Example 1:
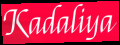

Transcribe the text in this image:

Kadaliya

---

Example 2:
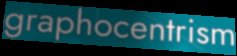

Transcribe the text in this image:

graphocentrism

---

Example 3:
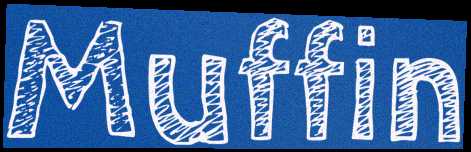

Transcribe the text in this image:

Muffin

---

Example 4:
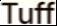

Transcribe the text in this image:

Tuff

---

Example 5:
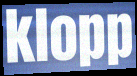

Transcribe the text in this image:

klopp